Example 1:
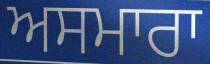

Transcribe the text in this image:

ਅਸਮਾਰਾ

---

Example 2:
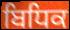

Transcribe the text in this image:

ਬਿਧਿਕ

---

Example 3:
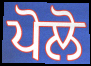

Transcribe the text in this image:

ਪੋਲੋ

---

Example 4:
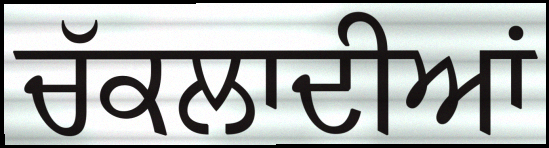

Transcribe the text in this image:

ਚੱਕਲਾਦੀਆਂ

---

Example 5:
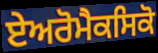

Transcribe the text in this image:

ਏਅਰੋਮੈਕਸਿਕੋ